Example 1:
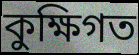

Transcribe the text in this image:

কুক্ষিগত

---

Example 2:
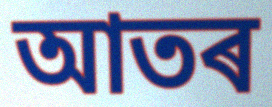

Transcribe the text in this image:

আতৰ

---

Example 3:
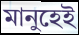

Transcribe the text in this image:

মানুহেই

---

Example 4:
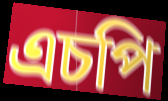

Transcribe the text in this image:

এচপি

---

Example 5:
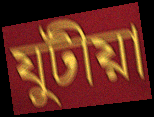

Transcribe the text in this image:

যুটীয়া